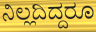
ನಿಲ್ಲದಿದ್ದರೂ